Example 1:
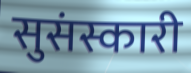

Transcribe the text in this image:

सुसंस्कारी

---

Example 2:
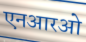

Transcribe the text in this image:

एनआरओ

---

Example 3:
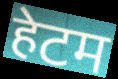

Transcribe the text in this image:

हेटम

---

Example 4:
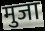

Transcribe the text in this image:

मुजा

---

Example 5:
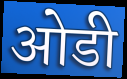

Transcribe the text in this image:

ओडी